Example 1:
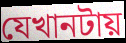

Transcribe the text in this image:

যেখানটায়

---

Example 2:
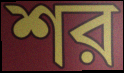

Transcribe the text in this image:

শর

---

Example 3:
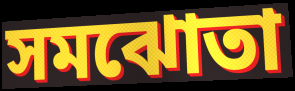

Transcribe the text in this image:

সমঝোতা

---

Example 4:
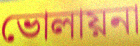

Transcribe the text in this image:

ভোলায়না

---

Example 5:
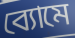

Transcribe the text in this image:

ব্যোমে